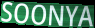
SOONYA